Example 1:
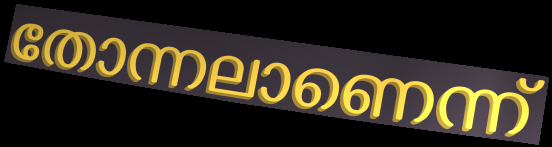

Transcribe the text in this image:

തോന്നലാണെന്ന്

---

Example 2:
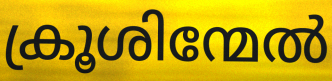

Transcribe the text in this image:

ക്രൂശിന്മേൽ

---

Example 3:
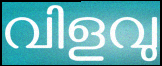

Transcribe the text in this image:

വിളവു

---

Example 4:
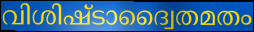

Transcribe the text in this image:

വിശിഷ്ടാദ്വൈതമതം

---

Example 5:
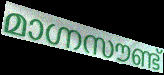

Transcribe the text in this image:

മാഗ്നസൗണ്ട്